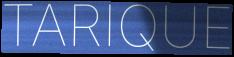
TARIQUE